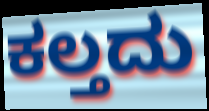
ಕಲ್ತದು